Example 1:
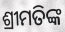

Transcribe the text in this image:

ଶ୍ରୀମତିଙ୍କ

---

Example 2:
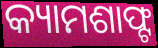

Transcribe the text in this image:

କ୍ୟାମଶାଫ୍ଟ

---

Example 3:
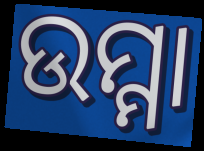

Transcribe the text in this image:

ଉମ୍ମା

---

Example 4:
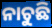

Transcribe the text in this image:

ନାଚୁଛି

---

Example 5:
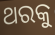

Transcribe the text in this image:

ଥରକୁ